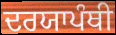
ਦਰਯਾਪੰਥੀ